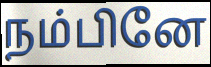
நம்பினே